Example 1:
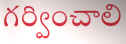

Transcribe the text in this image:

గర్వించాలి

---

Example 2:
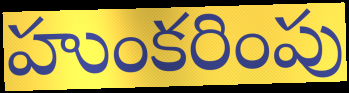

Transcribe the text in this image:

హుంకరింపు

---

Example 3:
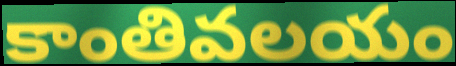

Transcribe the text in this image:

కాంతివలయం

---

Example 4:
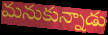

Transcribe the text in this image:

మనుకున్నాడు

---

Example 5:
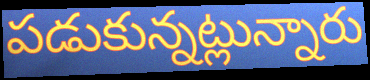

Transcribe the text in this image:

పడుకున్నట్లున్నారు